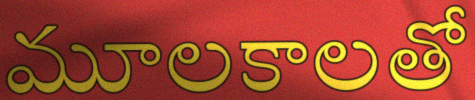
మూలకాలతో